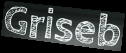
Griseb